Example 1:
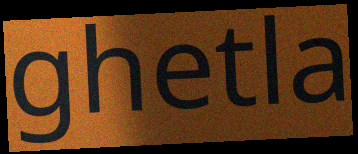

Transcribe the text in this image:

ghetla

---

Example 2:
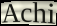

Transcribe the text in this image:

Achi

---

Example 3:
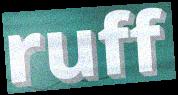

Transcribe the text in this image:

ruff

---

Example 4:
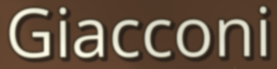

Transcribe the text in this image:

Giacconi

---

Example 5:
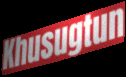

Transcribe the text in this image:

Khusugtun